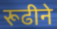
रूढीने